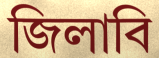
জিলাবি